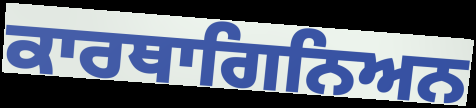
ਕਾਰਥਾਗਿਨਿਅਨ